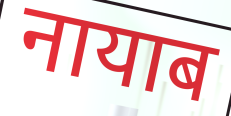
नायाब